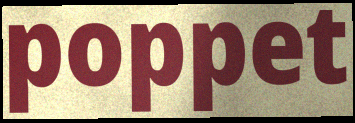
poppet